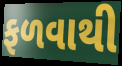
ફળવાથી